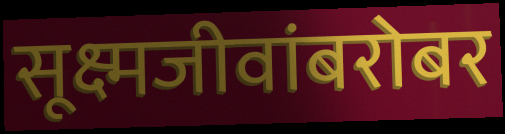
सूक्ष्मजीवांबरोबर